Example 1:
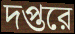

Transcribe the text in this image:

দপ্তরে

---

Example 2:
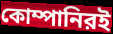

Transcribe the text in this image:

কোম্পানিরই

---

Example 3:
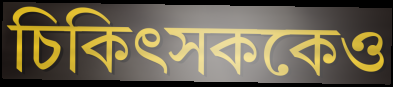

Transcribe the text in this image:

চিকিৎসককেও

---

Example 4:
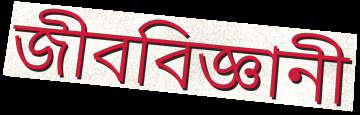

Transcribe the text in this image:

জীববিজ্ঞানী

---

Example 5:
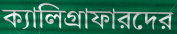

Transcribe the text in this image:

ক্যালিগ্রাফারদের